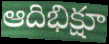
ఆదిభిక్షూ